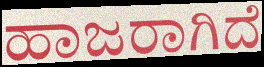
ಹಾಜರಾಗಿದೆ